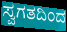
ಸ್ವಗತದಿಂದ